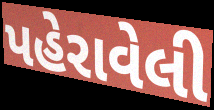
પહેરાવેલી